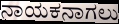
ನಾಯಕನಾಗಲು